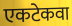
एकटेकवा